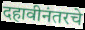
दहावीनंतरचे